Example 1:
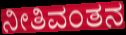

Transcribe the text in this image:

ನೀತಿವಂತನ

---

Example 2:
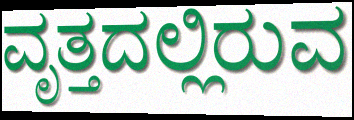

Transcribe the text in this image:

ವೃತ್ತದಲ್ಲಿರುವ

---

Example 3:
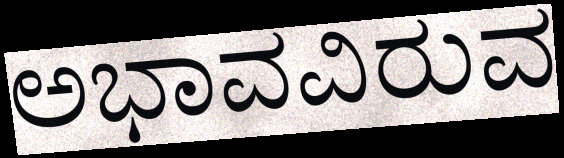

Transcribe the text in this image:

ಅಭಾವವಿರುವ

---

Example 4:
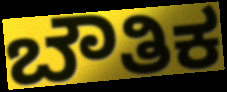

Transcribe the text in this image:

ಬೌತಿಕ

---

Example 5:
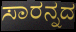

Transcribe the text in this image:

ಸಾರನ್ನದ